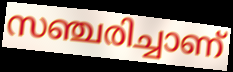
സഞ്ചരിച്ചാണ്